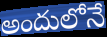
అందులోనే